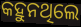
କହୁନଥିଲେ